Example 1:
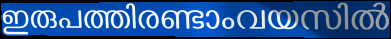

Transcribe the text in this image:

ഇരുപത്തിരണ്ടാംവയസിൽ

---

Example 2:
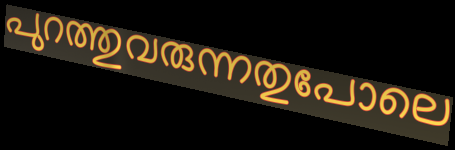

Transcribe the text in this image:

പുറത്തുവരുന്നതുപോലെ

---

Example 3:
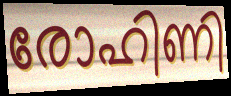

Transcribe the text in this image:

രോഹിണി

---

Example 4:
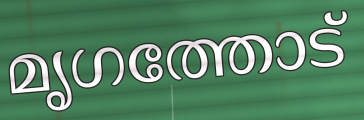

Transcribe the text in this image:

മൃഗത്തോട്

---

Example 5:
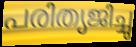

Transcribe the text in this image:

പരിത്യജിച്ചു